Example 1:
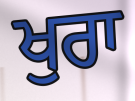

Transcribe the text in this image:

ਖੁਰਾ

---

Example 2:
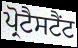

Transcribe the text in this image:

ਪ੍ਰੋਟੈਸਟੈਂਟ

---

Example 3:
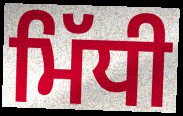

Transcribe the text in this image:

ਮਿੱਧੀ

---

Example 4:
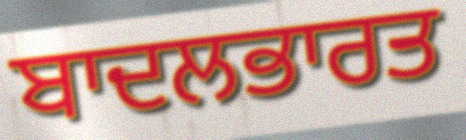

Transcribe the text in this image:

ਬਾਦਲਭਾਰਤ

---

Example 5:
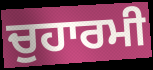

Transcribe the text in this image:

ਚੁਹਾਰਮੀ